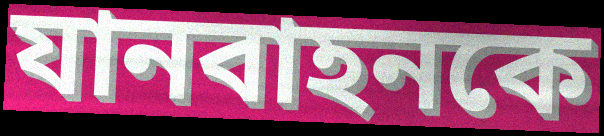
যানবাহনকে